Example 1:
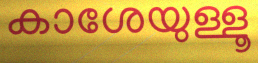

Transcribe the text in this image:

കാശേയുള്ളൂ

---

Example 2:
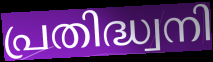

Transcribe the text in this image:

പ്രതിദ്ധ്വനി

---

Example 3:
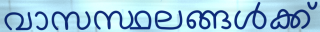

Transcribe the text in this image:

വാസസ്ഥലങ്ങൾക്ക്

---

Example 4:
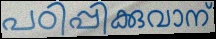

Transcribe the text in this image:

പഠിപ്പിക്കുവാന്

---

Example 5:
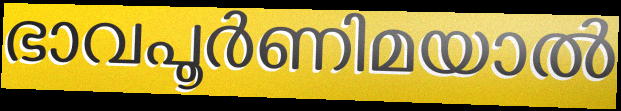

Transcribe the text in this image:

ഭാവപൂർണിമയാൽ